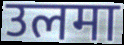
उलमा